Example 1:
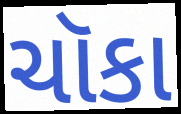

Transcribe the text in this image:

ચૉકા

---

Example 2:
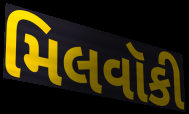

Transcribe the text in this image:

મિલવૉકી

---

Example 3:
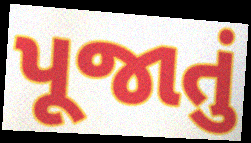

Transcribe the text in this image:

પૂજાતું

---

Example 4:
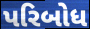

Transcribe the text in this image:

પરિબોધ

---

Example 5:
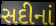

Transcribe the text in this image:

સદીનાં